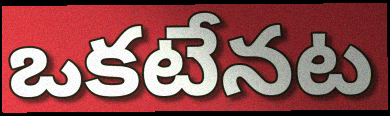
ఒకటేనట